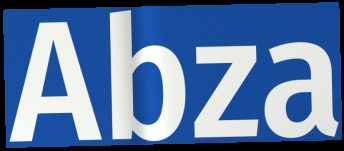
Abza